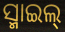
ସ୍ମାଇଲ୍